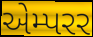
એમ્પરર